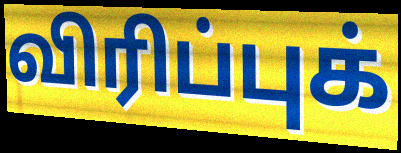
விரிப்புக்